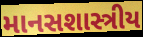
માનસશાસ્ત્રીય